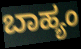
ಬಾಹ್ಯಂ